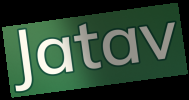
Jatav